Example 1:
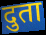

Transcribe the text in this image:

दुता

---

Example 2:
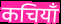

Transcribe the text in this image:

कचियाँ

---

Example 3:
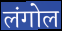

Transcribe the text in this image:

लंगोल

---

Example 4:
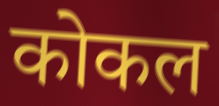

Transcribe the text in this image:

कोकल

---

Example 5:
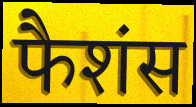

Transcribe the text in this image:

फैशंस